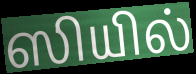
ஸியில்